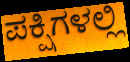
ಪಕ್ಷಿಗಳಲ್ಲಿ